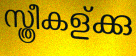
സ്ത്രീകള്ക്കു